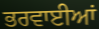
ਭਰਵਾਈਆਂ